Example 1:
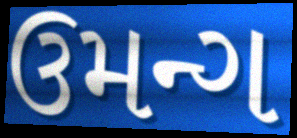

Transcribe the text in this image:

ઉમન્ગ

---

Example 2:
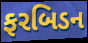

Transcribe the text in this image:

ફરબિડન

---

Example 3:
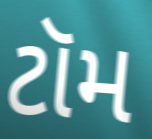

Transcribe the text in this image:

ટૉમ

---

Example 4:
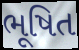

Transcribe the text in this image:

ભૂષિત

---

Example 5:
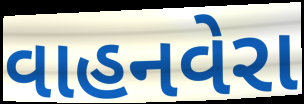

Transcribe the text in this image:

વાહનવેરા